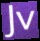
Jv